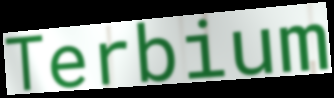
Terbium